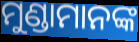
ମୁଣ୍ଡାମାନଙ୍କ